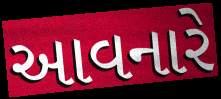
આવનારે